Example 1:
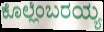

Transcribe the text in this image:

ಕೊಲ್ಲೆಂಬರಯ್ಯ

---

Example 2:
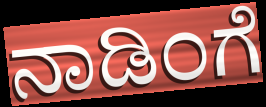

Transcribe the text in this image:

ನಾಡಿಂಗೆ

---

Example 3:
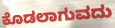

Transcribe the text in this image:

ಕೊಡಲಾಗುವದು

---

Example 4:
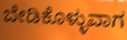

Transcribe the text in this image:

ಬೇಡಿಕೊಳ್ಳುವಾಗ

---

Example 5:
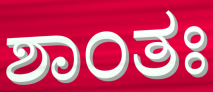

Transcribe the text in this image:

ಶಾಂತಃ